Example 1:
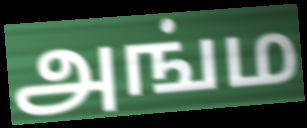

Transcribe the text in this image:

அங்ம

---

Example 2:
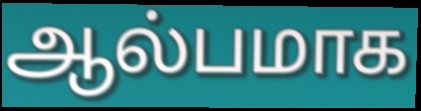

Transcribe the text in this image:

ஆல்பமாக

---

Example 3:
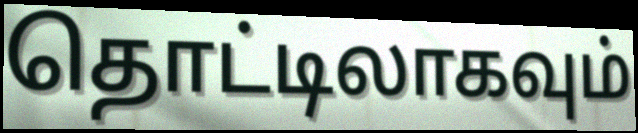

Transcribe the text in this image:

தொட்டிலாகவும்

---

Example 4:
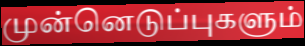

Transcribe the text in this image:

முன்னெடுப்புகளும்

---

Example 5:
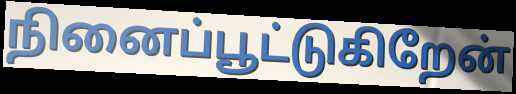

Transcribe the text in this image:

நினைப்பூட்டுகிறேன்